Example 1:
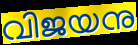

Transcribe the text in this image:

വിജയനു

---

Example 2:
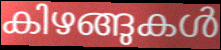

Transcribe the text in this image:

കിഴങ്ങുകൾ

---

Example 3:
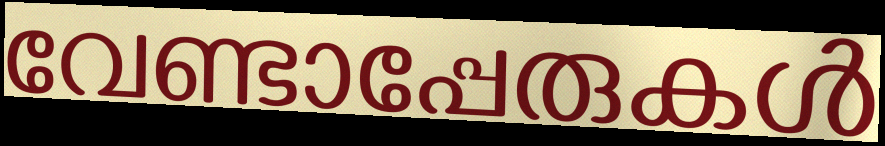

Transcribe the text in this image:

വേണ്ടാപ്പേരുകൾ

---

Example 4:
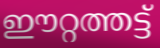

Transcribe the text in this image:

ഈറ്റത്തട്ട്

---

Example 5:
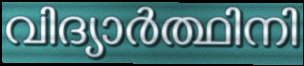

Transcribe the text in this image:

വിദ്യാർത്ഥിനി